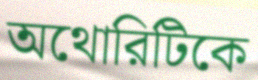
অথোরিটিকে